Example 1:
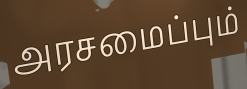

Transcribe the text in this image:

அரசமைப்பும்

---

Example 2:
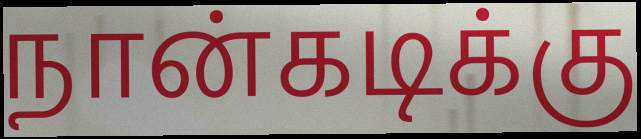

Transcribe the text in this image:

நான்கடிக்கு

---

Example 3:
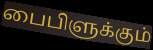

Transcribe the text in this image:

பைபிளுக்கும்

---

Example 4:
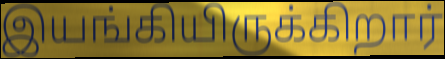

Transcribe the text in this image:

இயங்கியிருக்கிறார்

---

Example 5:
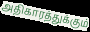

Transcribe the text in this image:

அதிகாரத்துக்கும்